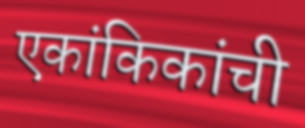
एकांकिकांची